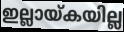
ഇല്ലായ്കയില്ല